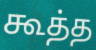
கூத்த